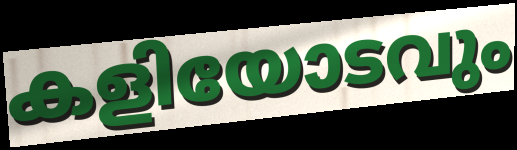
കളിയോടവും